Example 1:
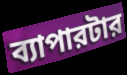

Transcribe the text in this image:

ব্যাপারটার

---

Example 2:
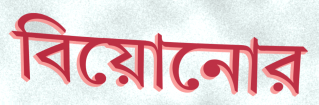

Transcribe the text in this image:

বিয়োনোর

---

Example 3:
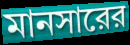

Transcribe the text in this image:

মানসারের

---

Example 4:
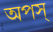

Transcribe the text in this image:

অপস্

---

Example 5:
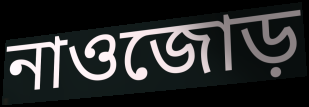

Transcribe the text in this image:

নাওজোড়